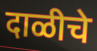
दाळीचे